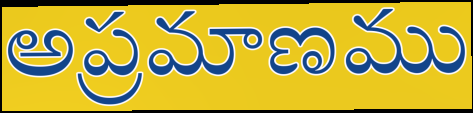
అప్రమాణము